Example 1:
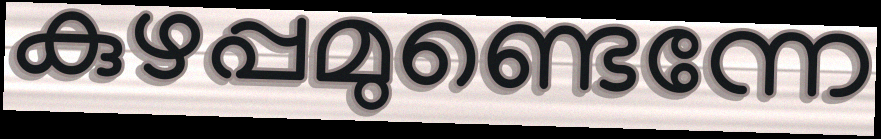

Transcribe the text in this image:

കുഴപ്പമുണ്ടെന്നേ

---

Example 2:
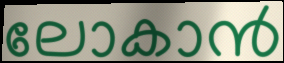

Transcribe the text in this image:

ലോകാൻ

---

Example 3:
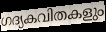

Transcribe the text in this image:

ഗദ്യകവിതകളും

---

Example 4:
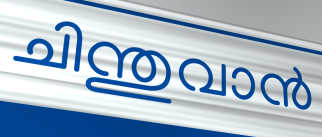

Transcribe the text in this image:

ചിന്തുവാൻ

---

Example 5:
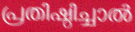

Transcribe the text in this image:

പ്രതിഷ്ഠിച്ചാൽ